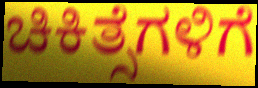
ಚಿಕಿತ್ಸೆಗಳಿಗೆ